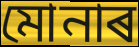
মোনাৰ